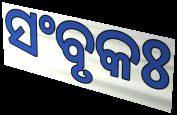
ସଂବୃକଃ